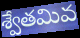
శ్వేతమివ